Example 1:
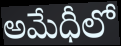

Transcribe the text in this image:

అమేధీలో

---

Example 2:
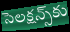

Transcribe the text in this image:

సెలక్షన్స్‌కు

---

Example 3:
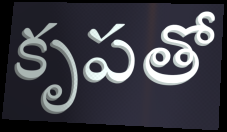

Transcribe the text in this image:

కృపతో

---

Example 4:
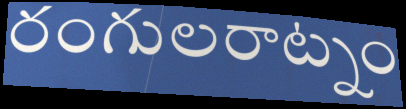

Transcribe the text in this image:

రంగులరాట్నం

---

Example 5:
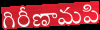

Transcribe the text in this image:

గిరీణామపి